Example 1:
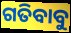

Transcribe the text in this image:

ଗତିବାବୁ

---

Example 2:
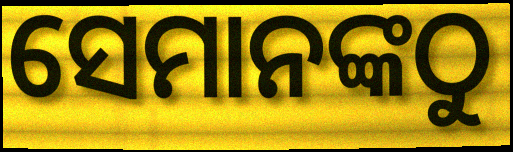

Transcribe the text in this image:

ସେମାନଙ୍କଠୁ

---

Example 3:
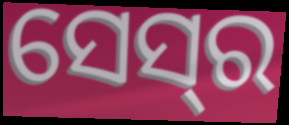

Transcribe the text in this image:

ସେସ୍‌ର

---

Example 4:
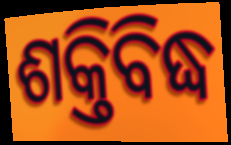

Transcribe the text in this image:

ଶକ୍ତିବିଦ୍ଧ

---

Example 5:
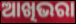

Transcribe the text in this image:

ଆଖିଭରା